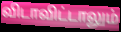
விடாவிட்டாலும்